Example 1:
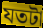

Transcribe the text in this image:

যতটা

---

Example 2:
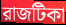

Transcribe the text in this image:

রাজটিকা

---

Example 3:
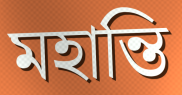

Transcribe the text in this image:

মহান্তি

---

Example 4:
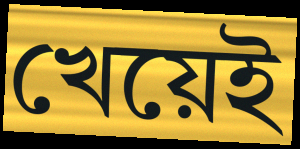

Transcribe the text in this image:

খেয়েই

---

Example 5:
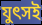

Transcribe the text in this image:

যুৎসই